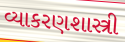
વ્યાકરણશાસ્ત્રી